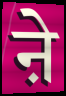
ऩे